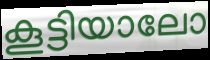
കൂട്ടിയാലോ